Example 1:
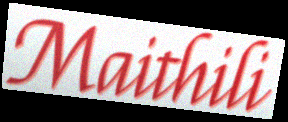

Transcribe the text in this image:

Maithili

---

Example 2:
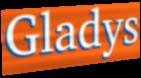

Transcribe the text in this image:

Gladys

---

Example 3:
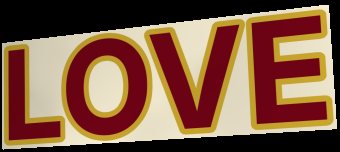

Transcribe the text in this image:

LOVE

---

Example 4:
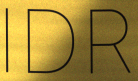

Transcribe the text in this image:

IDR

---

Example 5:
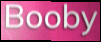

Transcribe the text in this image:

Booby